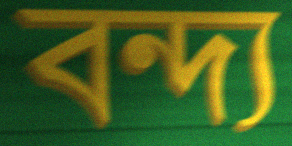
বন্দ্য